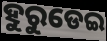
ହୁରୁଡେଇ